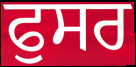
ਫੁਸਰ